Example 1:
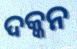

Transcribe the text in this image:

ଦକ୍କନ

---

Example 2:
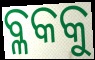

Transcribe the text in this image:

ବ୍ଳକକୁ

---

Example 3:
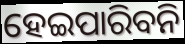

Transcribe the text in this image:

ହେଇପାରିବନି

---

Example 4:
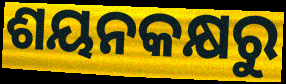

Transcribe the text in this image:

ଶୟନକକ୍ଷରୁ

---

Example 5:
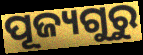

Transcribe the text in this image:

ପୂଜ୍ୟଗୁରୁ